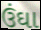
ઉંઘા